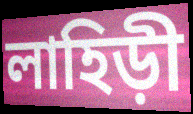
লাহিড়ী